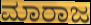
ಮಾರಾಜ